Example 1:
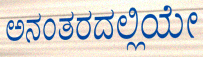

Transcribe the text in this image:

ಅನಂತರದಲ್ಲಿಯೇ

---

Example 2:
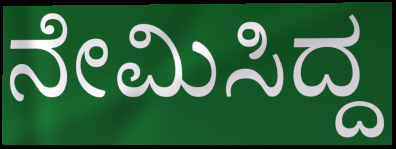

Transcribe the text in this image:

ನೇಮಿಸಿದ್ದ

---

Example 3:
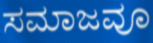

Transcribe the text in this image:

ಸಮಾಜವೂ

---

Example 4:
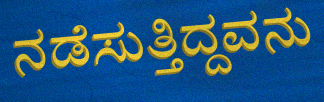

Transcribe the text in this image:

ನಡೆಸುತ್ತಿದ್ದವನು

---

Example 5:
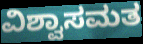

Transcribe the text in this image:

ವಿಶ್ವಾಸಮತ